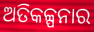
ଅତିକଳ୍ପନାର